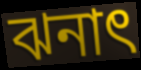
ঝনাৎ